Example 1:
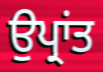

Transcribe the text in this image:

ਉਪ੍ਰਾਂਤ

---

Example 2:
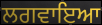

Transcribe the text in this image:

ਲਗਵਾਇਆ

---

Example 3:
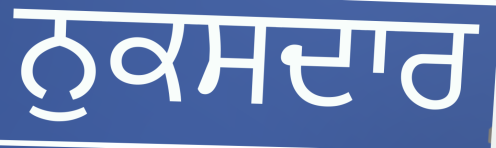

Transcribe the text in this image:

ਨੁਕਸਦਾਰ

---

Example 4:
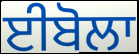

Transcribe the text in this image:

ਈਬੋਲਾ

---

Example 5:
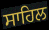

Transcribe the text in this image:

ਸਾਹਿਲ